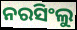
ନରସିଂଲୁ